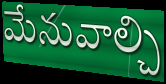
మేనువాల్చి